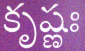
కృష్ణః